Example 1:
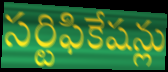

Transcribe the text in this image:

సర్టిఫికేషన్లు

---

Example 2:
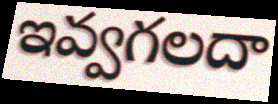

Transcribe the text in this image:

ఇవ్వగలదా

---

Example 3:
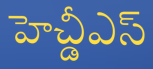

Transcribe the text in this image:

హెచ్డీఎస్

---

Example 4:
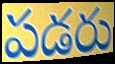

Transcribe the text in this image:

పడరు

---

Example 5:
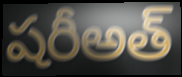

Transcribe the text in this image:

షరీఅత్